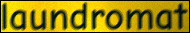
laundromat